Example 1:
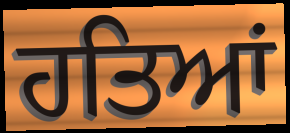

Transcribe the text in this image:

ਹਤਿਆਂ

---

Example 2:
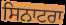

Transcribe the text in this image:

ਸਿਨਾਟਰਾ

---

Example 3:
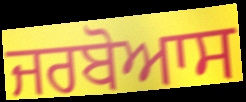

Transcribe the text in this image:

ਜਰਬੋਆਸ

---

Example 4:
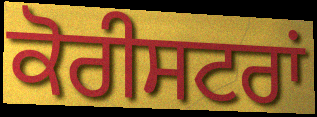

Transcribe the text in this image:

ਕੋਰੀਸਟਰਾਂ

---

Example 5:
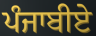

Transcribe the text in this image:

ਪੰਜਾਬੀਏ